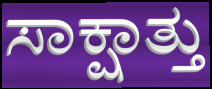
ಸಾಕ್ಷಾತ್ತು